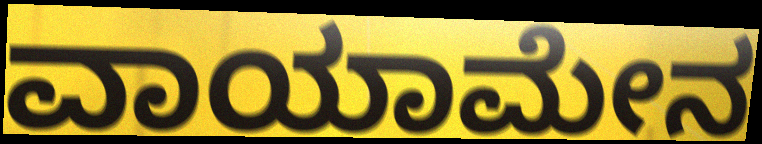
ವಾಯಾಮೇನ